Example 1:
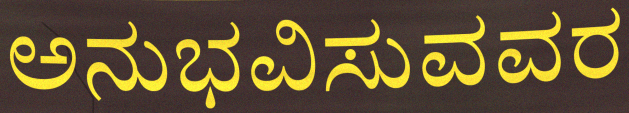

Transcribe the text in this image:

ಅನುಭವಿಸುವವರ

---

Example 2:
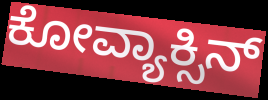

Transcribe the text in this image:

ಕೋವ್ಯಾಕ್ಸಿನ್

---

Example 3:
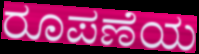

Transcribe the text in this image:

ರೂಪಣೆಯ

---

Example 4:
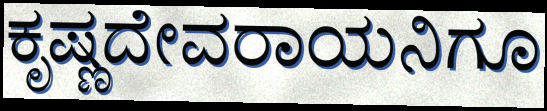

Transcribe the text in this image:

ಕೃಷ್ಣದೇವರಾಯನಿಗೂ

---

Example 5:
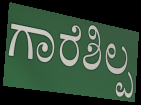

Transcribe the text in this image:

ಗಾರೆಶಿಲ್ಪ